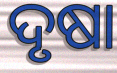
ଦୃଷା